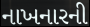
નાખનારની